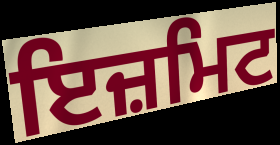
ਇਜ਼ਮਿਟ